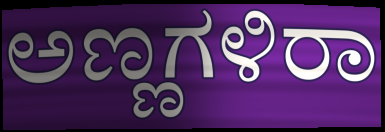
ಅಣ್ಣಗಳಿರಾ